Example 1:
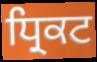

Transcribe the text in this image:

ਧ੍ਰਿਕਟ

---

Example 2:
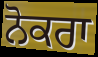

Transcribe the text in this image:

ਨੋਕਰਾ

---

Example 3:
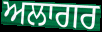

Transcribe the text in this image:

ਅਲਾਗਰ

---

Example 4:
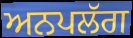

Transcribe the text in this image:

ਅਨਪਲੱਗ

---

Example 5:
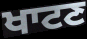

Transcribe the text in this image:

ਖਾਟਣ